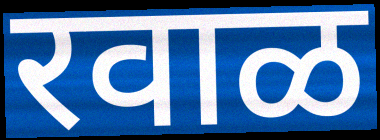
रवाळ